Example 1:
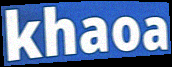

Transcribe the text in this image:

khaoa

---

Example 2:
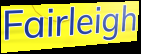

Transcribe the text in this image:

Fairleigh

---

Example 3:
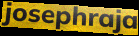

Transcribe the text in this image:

josephraja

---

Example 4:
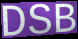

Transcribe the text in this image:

DSB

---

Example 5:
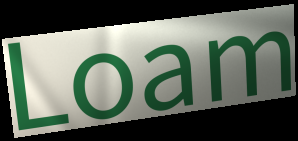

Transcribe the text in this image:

Loam